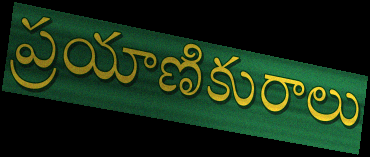
ప్రయాణికురాలు